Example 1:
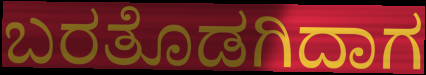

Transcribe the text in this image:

ಬರತೊಡಗಿದಾಗ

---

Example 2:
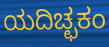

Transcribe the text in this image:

ಯದಿಚ್ಛಕಂ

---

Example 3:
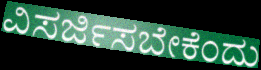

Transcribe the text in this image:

ವಿಸರ್ಜಿಸಬೇಕೆಂದು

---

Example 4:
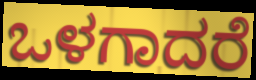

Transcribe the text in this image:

ಒಳಗಾದರೆ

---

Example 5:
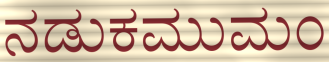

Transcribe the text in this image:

ನಡುಕಮುಮಂ